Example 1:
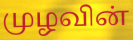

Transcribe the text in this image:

முழவின்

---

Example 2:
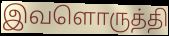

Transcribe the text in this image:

இவளொருத்தி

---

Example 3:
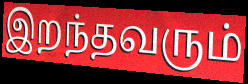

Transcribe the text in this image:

இறந்தவரும்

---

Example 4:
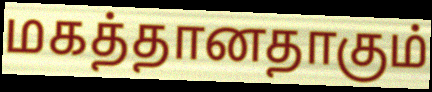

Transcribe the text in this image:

மகத்தானதாகும்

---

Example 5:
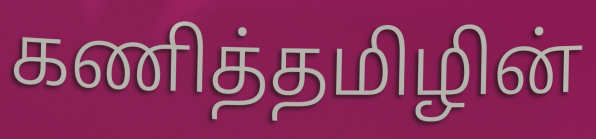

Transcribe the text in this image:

கணித்தமிழின்